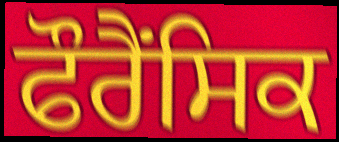
ਫੌਰੈਂਸਿਕ